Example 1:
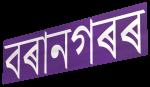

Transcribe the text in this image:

বৰানগৰৰ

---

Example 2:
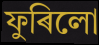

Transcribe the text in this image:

ফুৰিলো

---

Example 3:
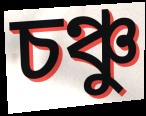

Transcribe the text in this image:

চঞ্চু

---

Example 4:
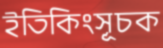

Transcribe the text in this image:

ইতিকিংসূচক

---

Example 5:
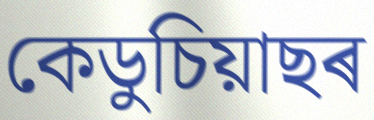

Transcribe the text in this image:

কেডুচিয়াছৰ